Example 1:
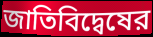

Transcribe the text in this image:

জাতিবিদ্বেষের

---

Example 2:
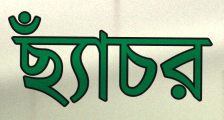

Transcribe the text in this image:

ছ্যাঁচর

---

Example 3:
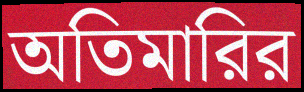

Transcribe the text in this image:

অতিমারির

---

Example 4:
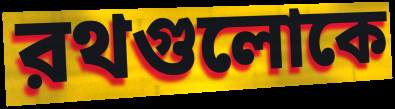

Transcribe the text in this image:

রথগুলোকে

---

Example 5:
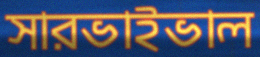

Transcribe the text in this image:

সারভাইভাল